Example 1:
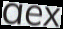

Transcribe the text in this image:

aex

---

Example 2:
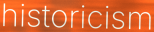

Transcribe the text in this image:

historicism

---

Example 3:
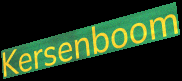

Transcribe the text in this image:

Kersenboom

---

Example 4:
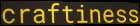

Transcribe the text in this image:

craftiness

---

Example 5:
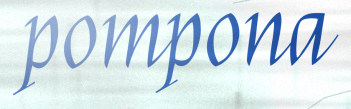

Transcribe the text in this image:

pompona